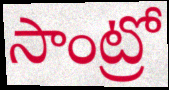
సాంట్రో